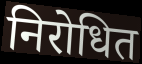
निरोधित